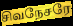
சிவநேசரே